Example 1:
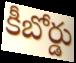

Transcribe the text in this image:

కీబోర్డు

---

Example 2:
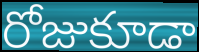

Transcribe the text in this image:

రోజుకూడా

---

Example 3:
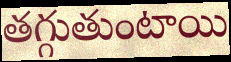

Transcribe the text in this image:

తగ్గుతుంటాయి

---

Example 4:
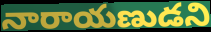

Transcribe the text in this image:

నారాయణుడని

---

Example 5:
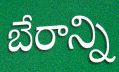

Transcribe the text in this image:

బేరాన్ని